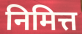
निमित्त